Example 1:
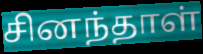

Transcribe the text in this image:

சினந்தாள்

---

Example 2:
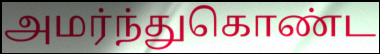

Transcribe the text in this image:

அமர்ந்துகொண்ட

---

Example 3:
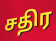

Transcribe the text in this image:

சதிர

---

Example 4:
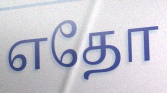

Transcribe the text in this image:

எதோ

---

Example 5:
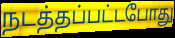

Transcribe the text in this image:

நடத்தப்பட்டபோது